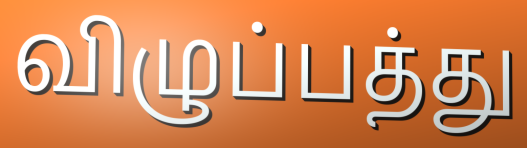
விழுப்பத்து